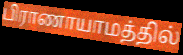
பிராணாயாமத்தில்